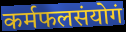
कर्मफलसंयोगं